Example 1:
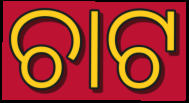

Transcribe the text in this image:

ଚାଟ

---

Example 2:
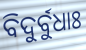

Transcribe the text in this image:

ବିଦୁର୍ବୁଧାଃ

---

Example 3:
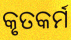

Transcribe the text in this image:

କୃତକର୍ମ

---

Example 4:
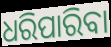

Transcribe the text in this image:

ଧରିପାରିବା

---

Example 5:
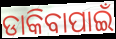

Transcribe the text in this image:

ଡାକିବାପାଇଁ